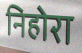
निहोरा